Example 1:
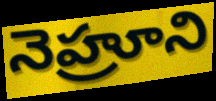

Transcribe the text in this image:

నెహ్రూని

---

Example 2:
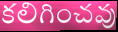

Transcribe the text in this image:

కలిగించవు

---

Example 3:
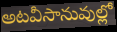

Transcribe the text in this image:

అటవీసానువుల్లో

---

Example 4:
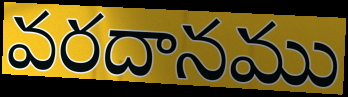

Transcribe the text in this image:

వరదానము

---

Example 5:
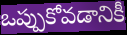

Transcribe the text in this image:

ఒప్పుకోవడానికీ